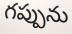
గప్పును